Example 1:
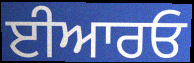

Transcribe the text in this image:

ਈਆਰਓ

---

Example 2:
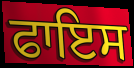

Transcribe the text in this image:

ਫਾਇਸ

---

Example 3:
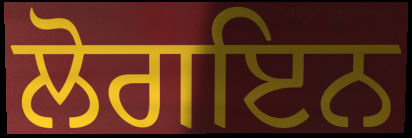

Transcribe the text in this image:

ਲੋਗਇਨ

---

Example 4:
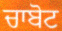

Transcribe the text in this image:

ਚਾਬੋਟ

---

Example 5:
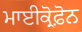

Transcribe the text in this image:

ਮਾਈਕ੍ਰੋਫ਼ੋਨ